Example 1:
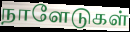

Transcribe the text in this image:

நாளேடுகள்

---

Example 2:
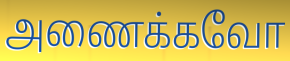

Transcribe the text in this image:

அணைக்கவோ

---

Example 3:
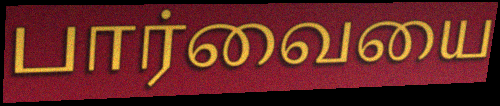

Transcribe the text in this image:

பார்வையை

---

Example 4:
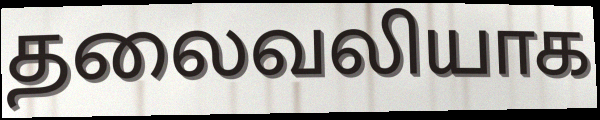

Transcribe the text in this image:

தலைவலியாக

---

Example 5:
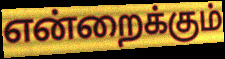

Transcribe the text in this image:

என்றைக்கும்